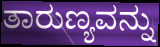
ತಾರುಣ್ಯವನ್ನು